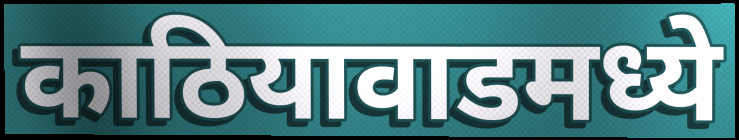
काठियावाडमध्ये